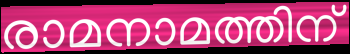
രാമനാമത്തിന്